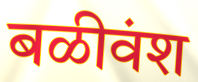
बळीवंश